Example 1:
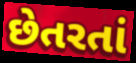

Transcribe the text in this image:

છેતરતાં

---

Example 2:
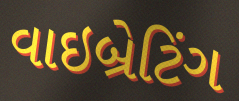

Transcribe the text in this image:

વાઇબ્રેટિંગ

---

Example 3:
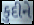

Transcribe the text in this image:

કુદીને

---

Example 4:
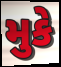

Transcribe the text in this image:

મુકે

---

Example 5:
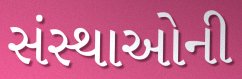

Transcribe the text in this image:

સંસ્થાઓની